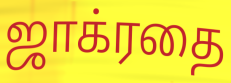
ஜாக்ரதை